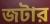
জটার